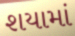
શયામાં